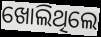
ଖୋଲିଥିଲେ